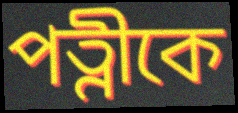
পত্নীকে